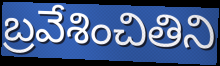
బ్రవేశించితిని